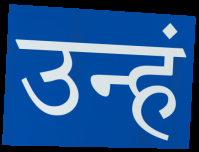
उन्हं